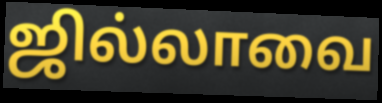
ஜில்லாவை